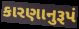
કારણાનુરૂપં